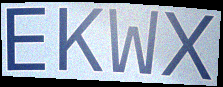
EKWX